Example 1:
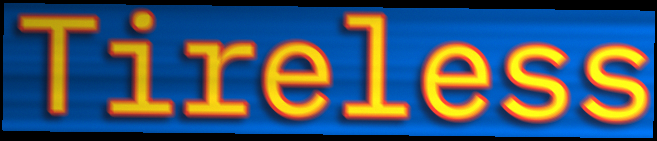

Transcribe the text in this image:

Tireless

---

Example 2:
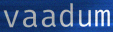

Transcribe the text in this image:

vaadum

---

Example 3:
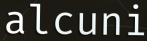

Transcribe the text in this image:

alcuni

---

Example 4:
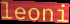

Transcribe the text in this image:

leoni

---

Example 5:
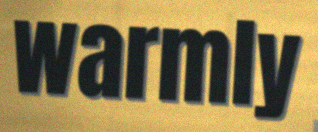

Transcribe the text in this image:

warmly